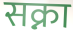
सक्ना